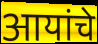
आयांचे